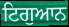
ਟਿਗੁਆਨ